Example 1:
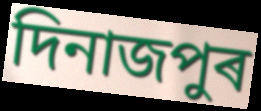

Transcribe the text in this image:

দিনাজপুৰ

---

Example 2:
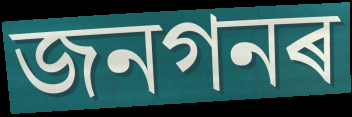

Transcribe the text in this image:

জনগনৰ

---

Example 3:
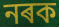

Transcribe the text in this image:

নৰক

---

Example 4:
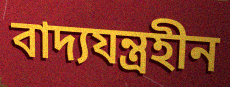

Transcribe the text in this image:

বাদ্যযন্ত্ৰহীন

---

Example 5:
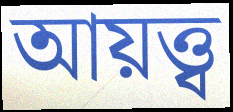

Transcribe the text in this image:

আয়ত্ত্ব